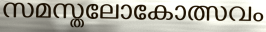
സമസ്തലോകോത്സവം